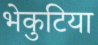
भेकुटिया